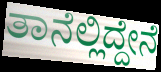
ತಾನೆಲ್ಲಿದ್ದೇನೆ